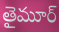
తైమూర్